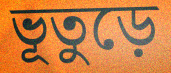
ভূতুড়ে